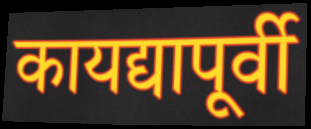
कायद्यापूर्वी